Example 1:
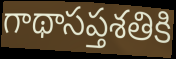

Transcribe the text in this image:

గాథాసప్తశతికి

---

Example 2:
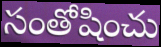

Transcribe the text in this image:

సంతోషించు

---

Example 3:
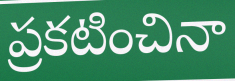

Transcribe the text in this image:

ప్రకటించినా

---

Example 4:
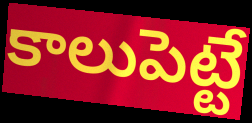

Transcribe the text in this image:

కాలుపెట్టే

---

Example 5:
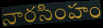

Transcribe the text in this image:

నారసింహం